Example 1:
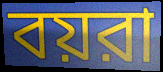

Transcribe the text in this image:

বয়রা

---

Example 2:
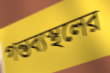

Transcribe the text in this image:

গন্তব্যস্থলের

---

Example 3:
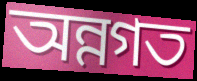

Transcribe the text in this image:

অন্নগত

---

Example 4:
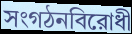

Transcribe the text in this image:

সংগঠনবিরোধী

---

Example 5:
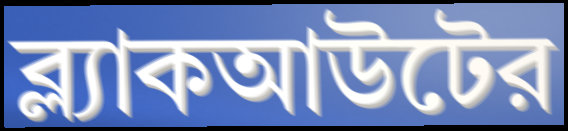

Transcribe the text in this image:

ব্ল্যাকআউটের